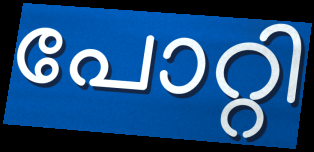
പോറ്റി